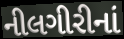
નીલગીરીનાં